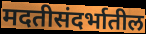
मदतीसंदर्भातील